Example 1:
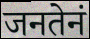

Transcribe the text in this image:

जनतेनं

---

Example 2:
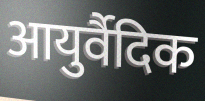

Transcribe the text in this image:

आयुर्वैदिक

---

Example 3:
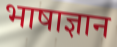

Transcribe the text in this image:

भाषाज्ञान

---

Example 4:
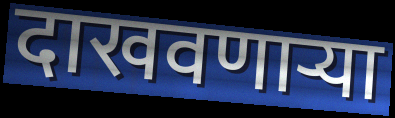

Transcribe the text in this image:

दाखवणाऱ्या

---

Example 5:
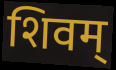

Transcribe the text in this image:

शिवम्